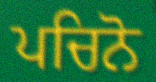
ਪਚਿਨੋ